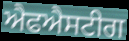
ਐਫਐਸਟੀਗ